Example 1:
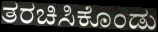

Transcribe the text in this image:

ತರಚಿಸಿಕೊಂಡು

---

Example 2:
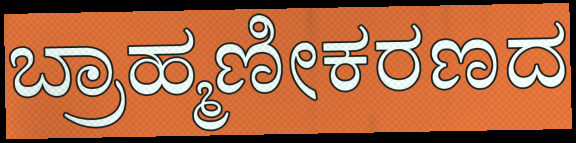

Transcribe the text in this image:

ಬ್ರಾಹ್ಮಣೀಕರಣದ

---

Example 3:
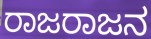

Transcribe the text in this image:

ರಾಜರಾಜನ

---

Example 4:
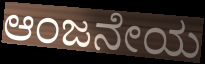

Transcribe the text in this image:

ಆಂಜನೇಯ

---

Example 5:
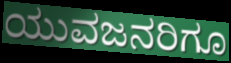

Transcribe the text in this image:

ಯುವಜನರಿಗೂ